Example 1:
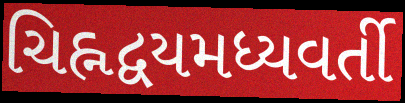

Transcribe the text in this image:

ચિહ્નદ્વયમધ્યવર્તી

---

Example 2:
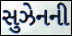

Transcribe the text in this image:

સુઝેનની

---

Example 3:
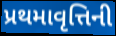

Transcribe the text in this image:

પ્રથમાવૃત્તિની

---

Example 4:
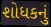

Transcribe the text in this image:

શોધકનું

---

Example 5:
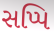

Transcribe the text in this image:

સપ્પિ